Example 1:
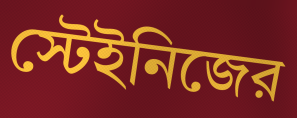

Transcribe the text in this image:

স্টেইনিজের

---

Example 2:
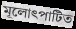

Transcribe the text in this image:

মূলোৎপাটিত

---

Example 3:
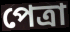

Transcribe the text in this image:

পেত্রা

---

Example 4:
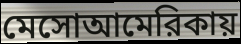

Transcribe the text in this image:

মেসোআমেরিকায়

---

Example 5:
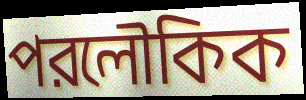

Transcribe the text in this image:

পরলৌকিক